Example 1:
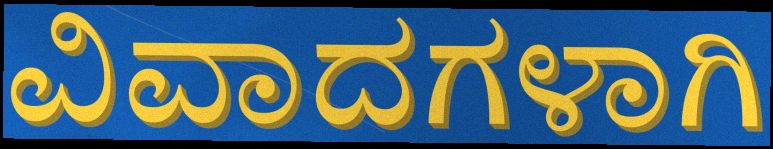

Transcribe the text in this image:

ವಿವಾದಗಳಾಗಿ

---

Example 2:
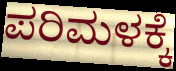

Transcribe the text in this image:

ಪರಿಮಳಕ್ಕೆ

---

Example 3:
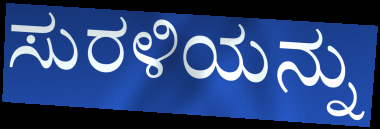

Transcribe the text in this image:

ಸುರಳಿಯನ್ನು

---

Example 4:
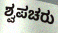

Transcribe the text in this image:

ಶ್ವಪಚರು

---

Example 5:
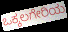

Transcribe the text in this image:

ಒಕ್ಕಲಗೇರಿಯ